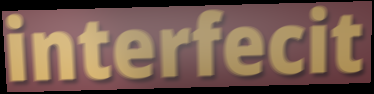
interfecit